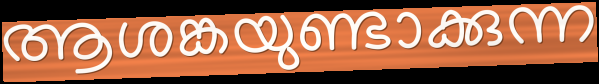
ആശങ്കയുണ്ടാക്കുന്ന